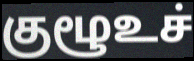
குழூஉச்